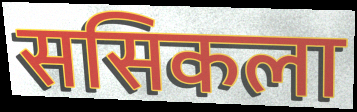
ससिकला